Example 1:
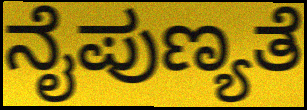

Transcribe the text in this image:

ನೈಪುಣ್ಯತೆ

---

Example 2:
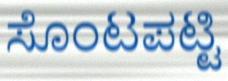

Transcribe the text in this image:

ಸೊಂಟಪಟ್ಟಿ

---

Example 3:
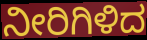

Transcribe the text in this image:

ನೀರಿಗಿಳಿದ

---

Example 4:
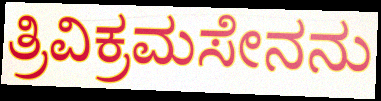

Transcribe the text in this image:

ತ್ರಿವಿಕ್ರಮಸೇನನು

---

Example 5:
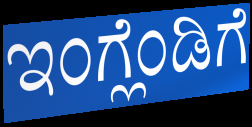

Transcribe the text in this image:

ಇಂಗ್ಲೆಂಡಿಗೆ